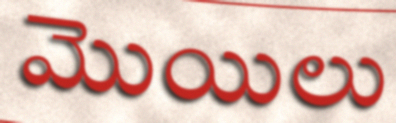
మొయిలు